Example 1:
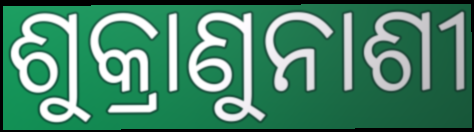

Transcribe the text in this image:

ଶୁକ୍ରାଣୁନାଶୀ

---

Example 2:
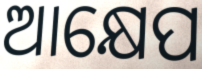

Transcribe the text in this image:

ଆକ୍ଷେପ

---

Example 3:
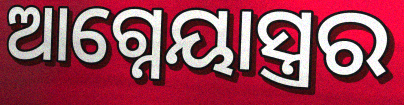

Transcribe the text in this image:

ଆଗ୍ନେୟାସ୍ତ୍ରର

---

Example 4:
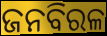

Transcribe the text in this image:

ଜନବିରଳ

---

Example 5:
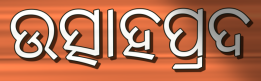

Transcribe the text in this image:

ଉତ୍ସାହପ୍ରଦ